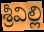
శ్రీవిల్లి